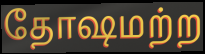
தோஷமற்ற